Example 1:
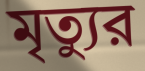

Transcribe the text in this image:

মৃত্যুর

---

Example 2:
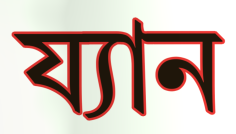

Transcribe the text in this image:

য্যান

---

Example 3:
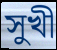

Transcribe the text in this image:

সুখী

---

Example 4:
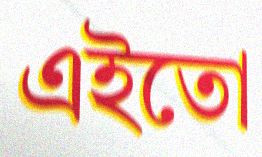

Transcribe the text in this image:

এইতো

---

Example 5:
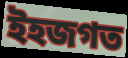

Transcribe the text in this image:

ইহজগত